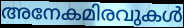
അനേകമിരവുകൾ